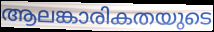
ആലങ്കാരികതയുടെ